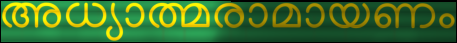
അധ്യാത്മരാമായണം